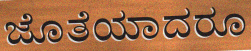
ಜೊತೆಯಾದರೂ